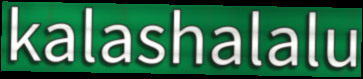
kalashalalu